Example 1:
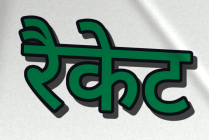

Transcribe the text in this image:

रैकेट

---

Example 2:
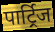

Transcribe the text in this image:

पार्ट्रिज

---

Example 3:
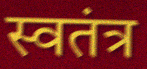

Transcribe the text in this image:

स्‍वतंत्र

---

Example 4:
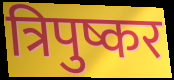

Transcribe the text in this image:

त्रिपुष्कर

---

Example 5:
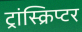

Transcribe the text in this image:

ट्रांस्क्रिप्टर